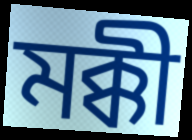
মক্কী